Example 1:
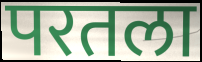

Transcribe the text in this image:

परतला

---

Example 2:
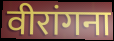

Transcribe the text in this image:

वीरांगना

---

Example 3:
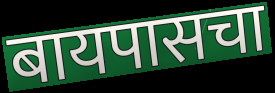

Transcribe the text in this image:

बायपासचा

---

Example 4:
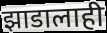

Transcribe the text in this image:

झाडालाही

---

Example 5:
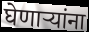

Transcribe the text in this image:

घेणाऱ्यांना